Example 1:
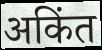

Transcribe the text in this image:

अकिंत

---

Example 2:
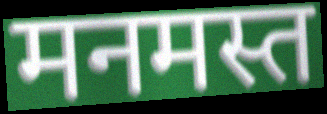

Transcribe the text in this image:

मनमस्त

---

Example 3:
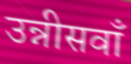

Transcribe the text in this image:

उन्नीसवाँ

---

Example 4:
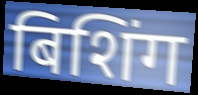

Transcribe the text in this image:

बिशिंग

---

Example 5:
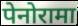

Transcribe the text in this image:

पेनोरामा